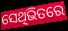
ସେଥିଭିତରେ